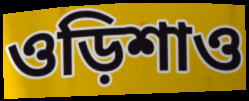
ওড়িশাও